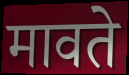
मावते